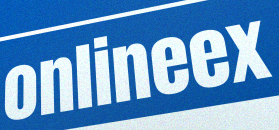
onlineex